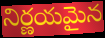
నిర్ణయమైన